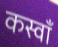
कस्वाँ